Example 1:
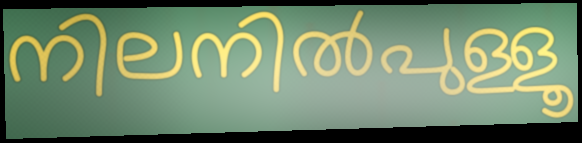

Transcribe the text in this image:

നിലനിൽപുള്ളൂ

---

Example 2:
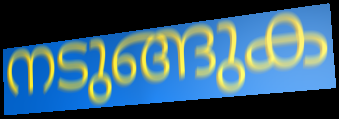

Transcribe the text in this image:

നടുങ്ങുക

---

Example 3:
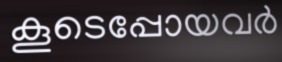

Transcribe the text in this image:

കൂടെപ്പോയവർ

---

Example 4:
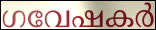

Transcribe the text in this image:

ഗവേഷകർ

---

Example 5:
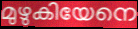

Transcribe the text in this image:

മുഴുകിയേനെ